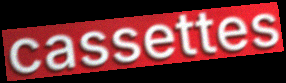
cassettes